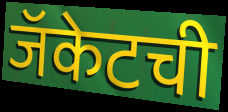
जॅकेटची